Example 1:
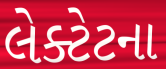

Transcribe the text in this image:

લેક્ટેટના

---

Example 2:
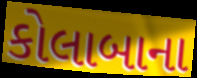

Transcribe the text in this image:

કોલાબાના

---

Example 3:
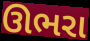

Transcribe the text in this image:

ઊભરા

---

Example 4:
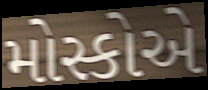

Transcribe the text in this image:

મોસ્કોએ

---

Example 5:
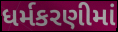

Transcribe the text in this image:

ધર્મકરણીમાં